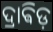
ଦ୍ରାଵିଡ଼